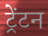
ट्रेंटन